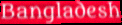
Bangladesh